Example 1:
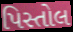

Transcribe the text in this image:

પિસ્તોલ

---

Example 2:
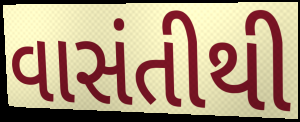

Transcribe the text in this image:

વાસંતીથી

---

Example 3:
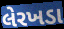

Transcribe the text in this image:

લેરખડા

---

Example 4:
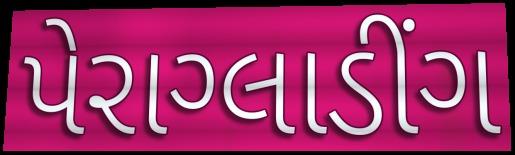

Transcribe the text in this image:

પેરાગ્લાડીંગ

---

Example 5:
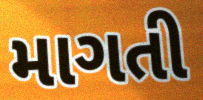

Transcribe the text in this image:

માગતી